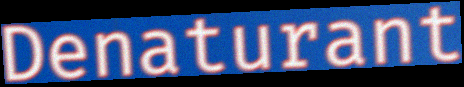
Denaturant